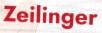
Zeilinger